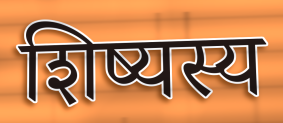
शिष्यस्य